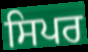
ਸਿਪਰ